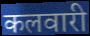
कलवारी